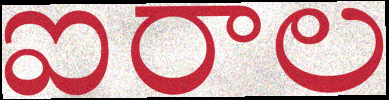
ఐరాల